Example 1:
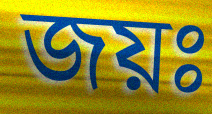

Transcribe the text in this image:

জয়ঃ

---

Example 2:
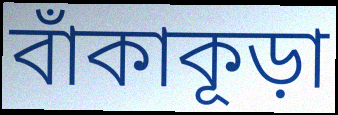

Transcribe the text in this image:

বাঁকাকূড়া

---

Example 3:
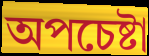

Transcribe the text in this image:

অপচেষ্টা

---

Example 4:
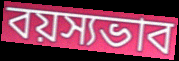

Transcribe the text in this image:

বয়স্যভাব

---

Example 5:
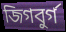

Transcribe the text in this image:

জিগবুর্গ